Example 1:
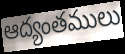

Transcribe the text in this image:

ఆద్యంతములు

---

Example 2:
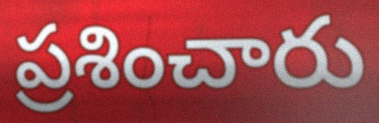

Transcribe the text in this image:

ప్రశించారు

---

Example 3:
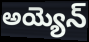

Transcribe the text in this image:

అయ్యెన్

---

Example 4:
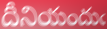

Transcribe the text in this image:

దీనియందుఁ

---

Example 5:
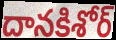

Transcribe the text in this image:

దానకిశోర్